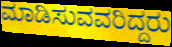
ಮಾಡಿಸುವವರಿದ್ದರು